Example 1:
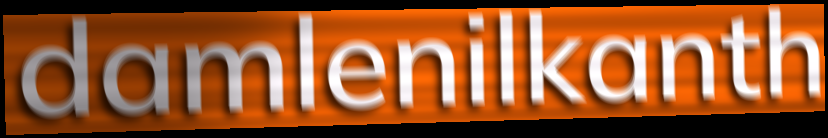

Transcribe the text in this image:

damlenilkanth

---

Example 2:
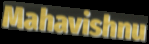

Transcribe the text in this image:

Mahavishnu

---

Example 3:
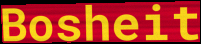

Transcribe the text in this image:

Bosheit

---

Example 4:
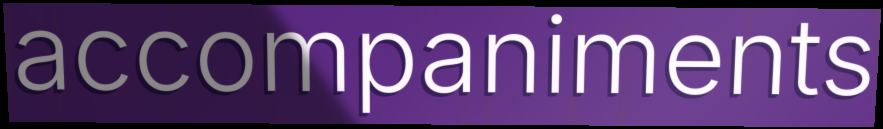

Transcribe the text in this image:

accompaniments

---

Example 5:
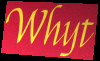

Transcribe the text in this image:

Whyt